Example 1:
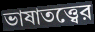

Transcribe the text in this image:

ভাষাতত্ত্বের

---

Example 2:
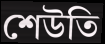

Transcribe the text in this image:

শেউতি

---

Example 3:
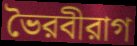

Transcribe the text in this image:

ভৈরবীরাগ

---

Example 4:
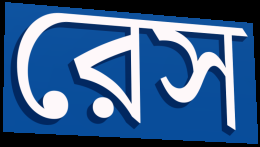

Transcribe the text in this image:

রেস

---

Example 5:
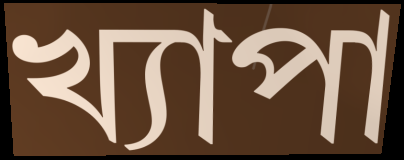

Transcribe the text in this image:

খ্যাপা